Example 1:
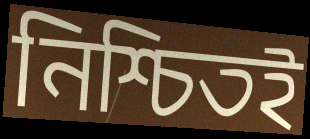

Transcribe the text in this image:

নিশ্চিতই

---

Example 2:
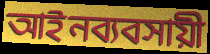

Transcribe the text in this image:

আইনব্যবসায়ী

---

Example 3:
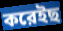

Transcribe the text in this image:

করেইছ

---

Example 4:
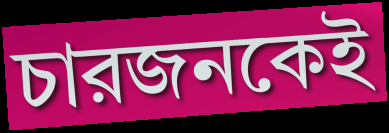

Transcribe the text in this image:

চারজনকেই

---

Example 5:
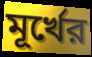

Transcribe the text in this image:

মূর্খের